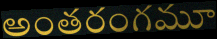
అంతరంగమూ